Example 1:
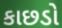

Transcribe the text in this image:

કાછડો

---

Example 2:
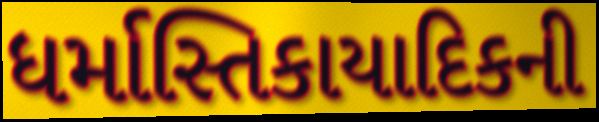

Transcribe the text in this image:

ધર્માસ્તિકાયાદિકની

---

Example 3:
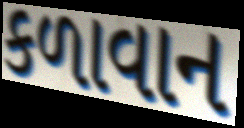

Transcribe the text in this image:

કળાવાન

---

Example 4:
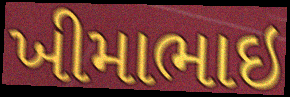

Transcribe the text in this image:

ખીમાભાઇ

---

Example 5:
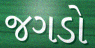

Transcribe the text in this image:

જગડો